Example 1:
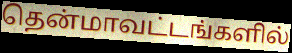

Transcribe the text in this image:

தென்மாவட்டங்களில்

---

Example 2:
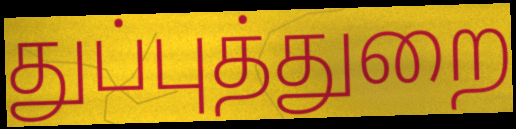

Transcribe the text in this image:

துப்புத்துறை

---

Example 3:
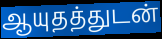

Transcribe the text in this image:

ஆயுதத்துடன்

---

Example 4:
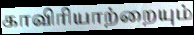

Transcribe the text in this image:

காவிரியாற்றையும்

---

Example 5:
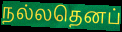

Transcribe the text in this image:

நல்லதெனப்